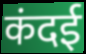
कंदई